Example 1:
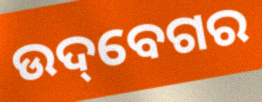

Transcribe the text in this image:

ଉଦ୍‌ବେଗର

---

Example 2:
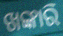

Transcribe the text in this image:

ଖଙ୍କାରି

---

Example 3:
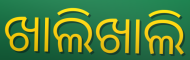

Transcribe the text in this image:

ଖାଲିଖାଲି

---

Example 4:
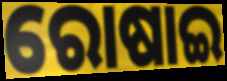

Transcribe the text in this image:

ରୋଷାଇ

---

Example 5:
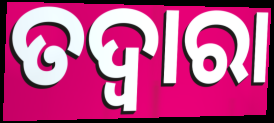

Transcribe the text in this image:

ତଦ୍ୱାରା